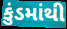
કુંડમાંથી